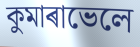
কুমাৰাভেলে